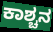
ಕಾಶ್ಚನ